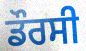
ਡੌਰਸੀ